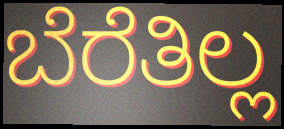
ಬೆರೆತಿಲ್ಲ